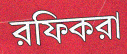
রফিকরা